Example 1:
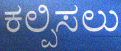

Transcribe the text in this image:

ಕಲ್ಪಿಸಲು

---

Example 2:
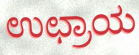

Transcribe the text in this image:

ಉಛ್ರಾಯ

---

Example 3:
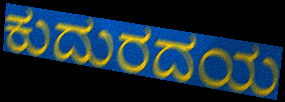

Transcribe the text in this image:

ಕುದುರದಯ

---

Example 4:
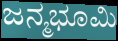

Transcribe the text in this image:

ಜನ್ಮಭೂಮಿ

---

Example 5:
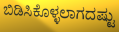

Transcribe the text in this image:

ಬಿಡಿಸಿಕೊಳ್ಳಲಾಗದಷ್ಟು